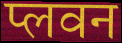
प्लवन